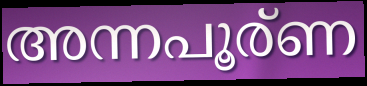
അന്നപൂര്ണ